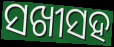
ସଖୀସହ